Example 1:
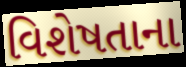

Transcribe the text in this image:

વિશેષતાના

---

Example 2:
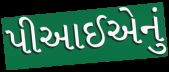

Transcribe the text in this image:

પીઆઈએનું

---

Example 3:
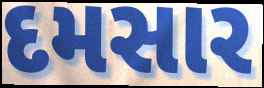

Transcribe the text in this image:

દમસાર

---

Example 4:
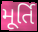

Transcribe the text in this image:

મૂર્તિ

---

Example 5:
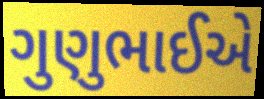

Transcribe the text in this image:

ગુણુભાઈએ